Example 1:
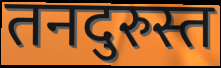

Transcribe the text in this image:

तनदुरुस्त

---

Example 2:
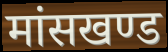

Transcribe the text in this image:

मांसखण्ड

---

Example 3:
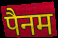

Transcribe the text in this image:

पैनम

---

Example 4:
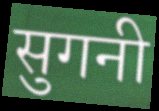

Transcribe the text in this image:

सुगनी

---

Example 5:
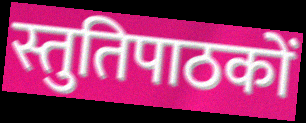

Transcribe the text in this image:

स्तुतिपाठकों